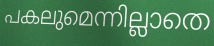
പകലുമെന്നില്ലാതെ